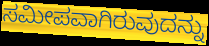
ಸಮೀಪವಾಗಿರುವುದನ್ನು